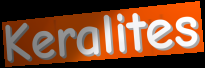
Keralites